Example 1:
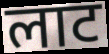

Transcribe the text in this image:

लाट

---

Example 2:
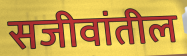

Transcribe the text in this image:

सजीवांतील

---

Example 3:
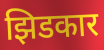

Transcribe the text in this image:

झिडकार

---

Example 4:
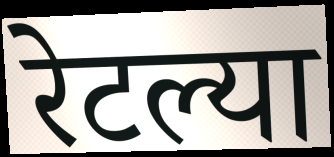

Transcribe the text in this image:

रेटल्या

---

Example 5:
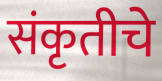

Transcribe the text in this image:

संकृतीचे